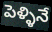
పెళ్ళినే